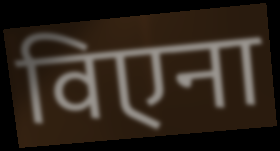
विएना